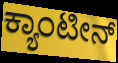
ಕ್ಯಾಂಟೀನ್